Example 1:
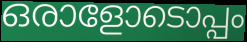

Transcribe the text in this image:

ഒരാളോടൊപ്പം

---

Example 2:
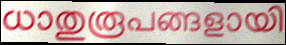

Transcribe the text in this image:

ധാതുരൂപങ്ങളായി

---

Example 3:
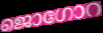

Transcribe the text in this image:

ജൊഗോറ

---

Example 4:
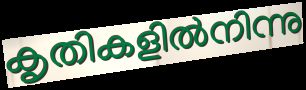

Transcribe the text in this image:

കൃതികളിൽനിന്നു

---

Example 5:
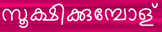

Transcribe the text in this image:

സൂക്ഷിക്കുമ്പോള്